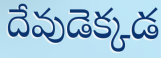
దేవుడెక్కడ